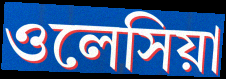
ওলেসিয়া